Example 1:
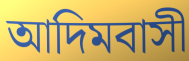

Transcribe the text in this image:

আদিমবাসী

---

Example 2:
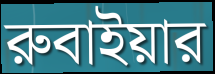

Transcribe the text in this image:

রুবাইয়ার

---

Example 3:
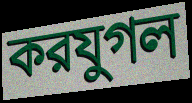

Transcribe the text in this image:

করযুগল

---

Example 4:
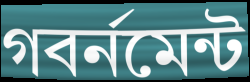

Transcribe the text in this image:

গবর্নমেন্ট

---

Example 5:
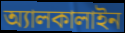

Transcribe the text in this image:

অ্যালকালাইন